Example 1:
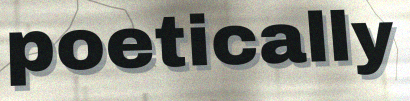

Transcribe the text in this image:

poetically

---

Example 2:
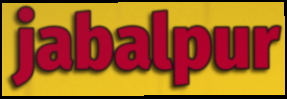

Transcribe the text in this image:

jabalpur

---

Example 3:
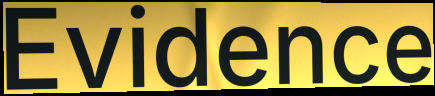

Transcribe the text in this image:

Evidence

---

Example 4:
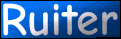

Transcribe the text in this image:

Ruiter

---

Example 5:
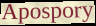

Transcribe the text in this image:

Apospory